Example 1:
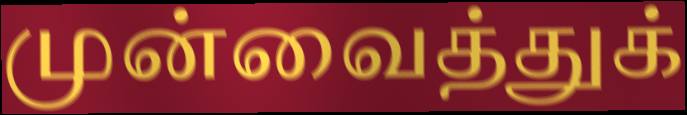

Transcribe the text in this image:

முன்வைத்துக்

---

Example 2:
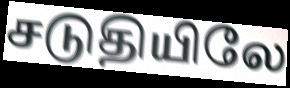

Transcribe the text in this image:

சடுதியிலே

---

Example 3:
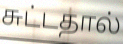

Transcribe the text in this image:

சுட்டதால்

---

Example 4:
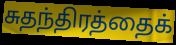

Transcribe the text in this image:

சுதந்திரத்தைக்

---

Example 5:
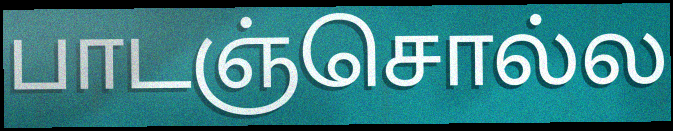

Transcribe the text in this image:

பாடஞ்சொல்ல